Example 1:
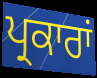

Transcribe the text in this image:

ਪ੍ਰਕਾਰਾਂ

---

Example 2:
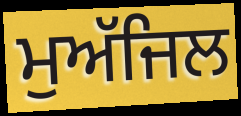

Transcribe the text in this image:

ਮੁਅੱਜਿਲ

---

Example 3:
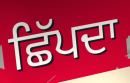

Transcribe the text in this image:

ਛਿੱਪਦਾ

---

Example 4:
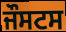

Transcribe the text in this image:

ਜੌਸਟਸ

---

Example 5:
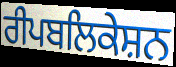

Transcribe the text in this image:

ਰੀਪਬਲਿਕੇਸ਼ਨ